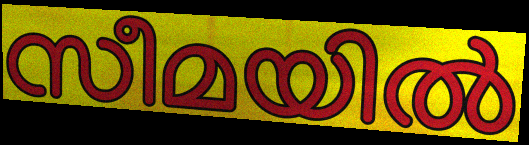
സീമയിൽ